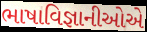
ભાષાવિજ્ઞાનીઓએ